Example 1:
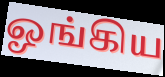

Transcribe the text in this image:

ஓங்கிய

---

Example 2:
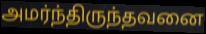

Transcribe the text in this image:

அமர்ந்திருந்தவனை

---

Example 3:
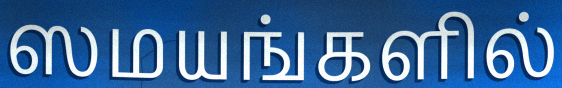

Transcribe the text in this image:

ஸமயங்களில்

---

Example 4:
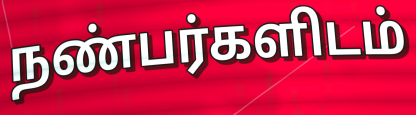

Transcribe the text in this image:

நண்பர்களிடம்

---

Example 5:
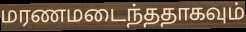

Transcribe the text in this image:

மரணமடைந்ததாகவும்